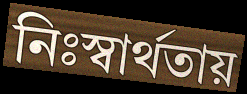
নিঃস্বার্থতায়